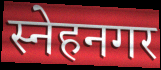
स्नेहनगर